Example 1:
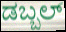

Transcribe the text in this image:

ಡಬ್ಬಲ್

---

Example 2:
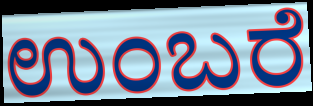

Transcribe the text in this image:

ಉಂಬರೆ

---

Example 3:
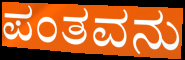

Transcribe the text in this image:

ಪಂತವನು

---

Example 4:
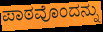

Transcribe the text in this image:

ಪಾಠವೊಂದನ್ನು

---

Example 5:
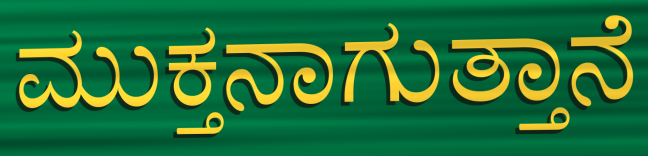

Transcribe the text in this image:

ಮುಕ್ತನಾಗುತ್ತಾನೆ